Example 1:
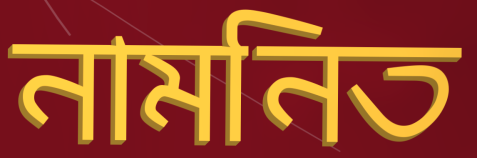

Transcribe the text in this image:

নামনিত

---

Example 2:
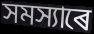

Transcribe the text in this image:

সমস্যাৰে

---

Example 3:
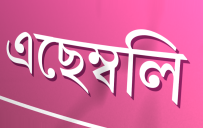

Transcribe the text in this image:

এছেম্বলি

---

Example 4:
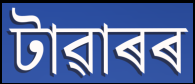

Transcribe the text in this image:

টাৱাৰৰ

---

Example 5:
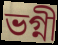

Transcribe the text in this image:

ভগ্নী